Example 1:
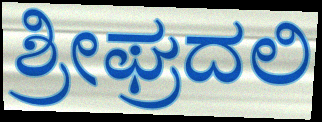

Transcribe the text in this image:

ಶ್ರೀಘ್ರದಲಿ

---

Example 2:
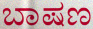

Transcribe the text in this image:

ಬಾಷಣ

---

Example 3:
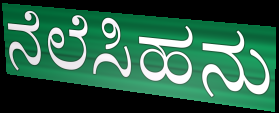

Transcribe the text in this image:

ನೆಲೆಸಿಹನು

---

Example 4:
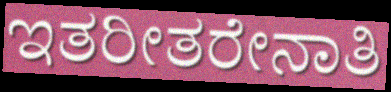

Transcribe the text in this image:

ಇತರೀತರೇನಾತಿ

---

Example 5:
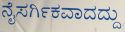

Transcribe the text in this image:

ನೈಸರ್ಗಿಕವಾದದ್ದು